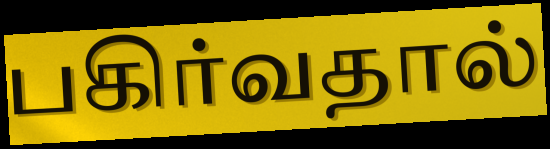
பகிர்வதால்